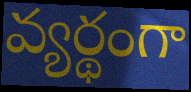
వ్యర్థంగా